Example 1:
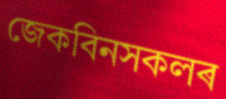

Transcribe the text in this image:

জেকবিনসকলৰ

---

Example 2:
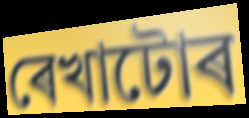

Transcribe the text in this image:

ৰেখাটোৰ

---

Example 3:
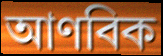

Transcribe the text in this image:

আণবিক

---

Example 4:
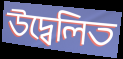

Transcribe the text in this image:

উদ্বেলিত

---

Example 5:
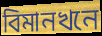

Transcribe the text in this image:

বিমানখনে